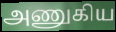
அணுகிய